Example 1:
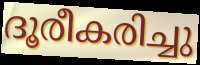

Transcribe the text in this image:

ദൂരീകരിച്ചു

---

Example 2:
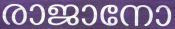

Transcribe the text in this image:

രാജാനോ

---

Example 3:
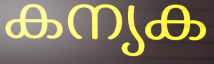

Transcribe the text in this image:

കന്യക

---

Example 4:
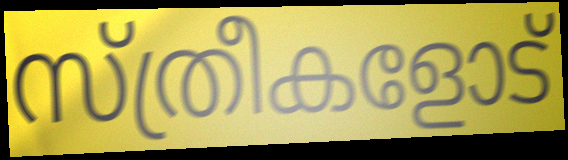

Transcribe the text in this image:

സ്ത്രീകളോട്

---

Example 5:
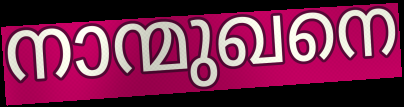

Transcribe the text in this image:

നാന്മുഖനെ